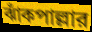
ঝাঁকপাল্লার